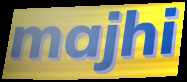
majhi